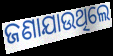
ଜଣାଯାଉଥିଲେ